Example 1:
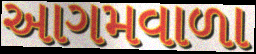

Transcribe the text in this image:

આગમવાળા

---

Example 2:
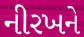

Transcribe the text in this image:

નીરખને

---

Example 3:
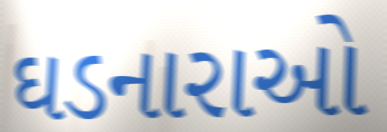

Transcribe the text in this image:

ઘડનારાઓ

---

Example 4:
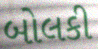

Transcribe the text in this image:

બોલકી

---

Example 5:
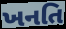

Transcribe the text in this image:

ખનતિ